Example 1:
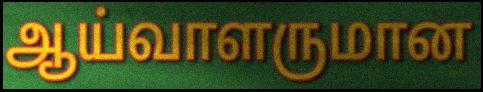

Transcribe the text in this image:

ஆய்வாளருமான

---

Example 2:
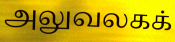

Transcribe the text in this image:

அலுவலகக்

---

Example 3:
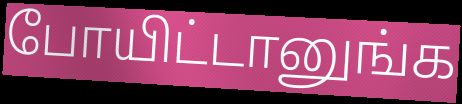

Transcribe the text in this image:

போயிட்டானுங்க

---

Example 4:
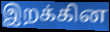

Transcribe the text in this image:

இறக்கின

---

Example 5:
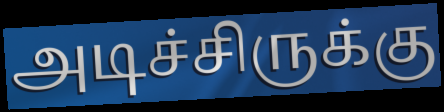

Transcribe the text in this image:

அடிச்சிருக்கு